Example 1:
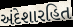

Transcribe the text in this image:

અંદેશારહિત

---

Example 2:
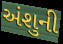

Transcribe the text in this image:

અંશુની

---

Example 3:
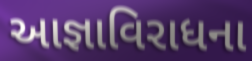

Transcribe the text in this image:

આજ્ઞાવિરાધના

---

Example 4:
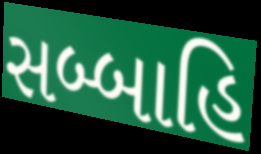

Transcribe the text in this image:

સબ્બાહિ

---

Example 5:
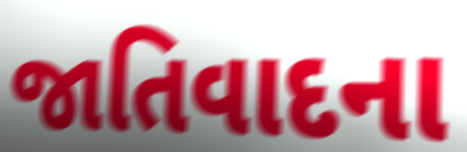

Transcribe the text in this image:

જાતિવાદના